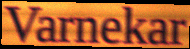
Varnekar